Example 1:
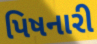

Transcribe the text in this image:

પિષનારી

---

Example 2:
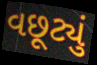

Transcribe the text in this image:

વછૂટ્યું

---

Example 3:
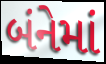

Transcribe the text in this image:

બંનેમાં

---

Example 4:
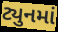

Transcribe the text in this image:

ટ્યુનમાં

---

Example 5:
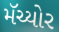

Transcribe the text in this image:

મૅચ્યોર